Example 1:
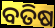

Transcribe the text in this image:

ବତିଷ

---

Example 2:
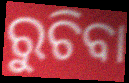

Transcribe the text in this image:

ରୁଚିବା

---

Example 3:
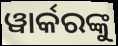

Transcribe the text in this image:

ୱାର୍କରଙ୍କୁ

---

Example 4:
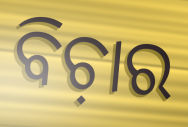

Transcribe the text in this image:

ବିଚ଼ାର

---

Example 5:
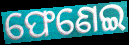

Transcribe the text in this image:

ଫେଣେଇ